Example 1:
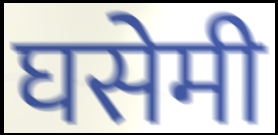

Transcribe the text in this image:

घसेमी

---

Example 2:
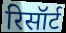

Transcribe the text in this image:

रिसॉर्ट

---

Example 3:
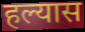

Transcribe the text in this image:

हल्यास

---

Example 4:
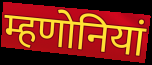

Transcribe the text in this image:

म्हणोनियां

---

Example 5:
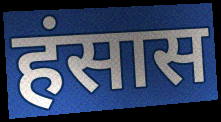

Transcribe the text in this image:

हंसास